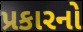
પ્રકારનો